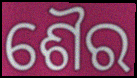
ଶୈର